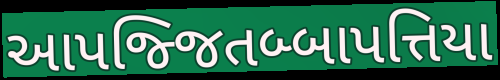
આપજ્જિતબ્બાપત્તિયા